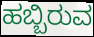
ಹಬ್ಬಿರುವ